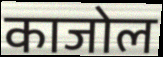
काजोल